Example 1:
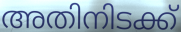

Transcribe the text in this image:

അതിനിടക്ക്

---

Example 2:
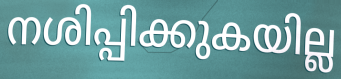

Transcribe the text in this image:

നശിപ്പിക്കുകയില്ല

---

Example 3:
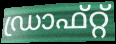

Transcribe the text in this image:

ഡ്രാഫ്റ്റ്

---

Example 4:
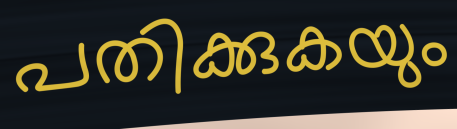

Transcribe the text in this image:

പതിക്കുകയും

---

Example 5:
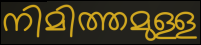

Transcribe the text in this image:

നിമിത്തമുള്ള